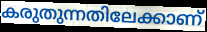
കരുതുന്നതിലേക്കാണ്